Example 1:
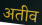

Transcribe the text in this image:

अतीव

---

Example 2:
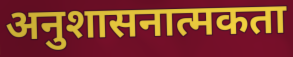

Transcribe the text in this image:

अनुशासनात्मकता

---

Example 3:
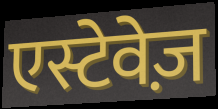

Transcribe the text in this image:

एस्टेवेज़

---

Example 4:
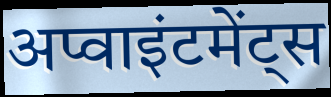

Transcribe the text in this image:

अप्वाइंटमेंट्स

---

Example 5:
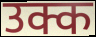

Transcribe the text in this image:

उक्क